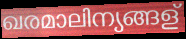
ഖരമാലിന്യങ്ങള്